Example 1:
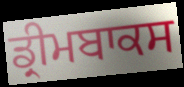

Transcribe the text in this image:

ਡ੍ਰੀਮਬਾਕਸ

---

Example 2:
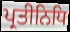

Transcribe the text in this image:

ਪ੍ਰਤੀਨਿਧਿ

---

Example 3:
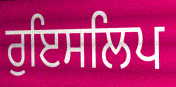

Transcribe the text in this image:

ਰੁਇਸਲਿਪ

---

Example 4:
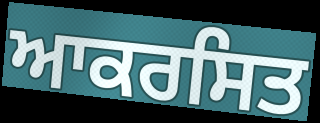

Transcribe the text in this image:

ਆਕਰਸਿਤ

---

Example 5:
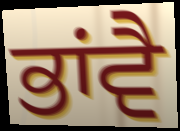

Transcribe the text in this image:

ਭਾਂਵੈ